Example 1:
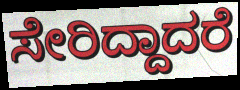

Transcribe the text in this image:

ಸೇರಿದ್ದಾದರೆ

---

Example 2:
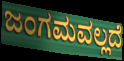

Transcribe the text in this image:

ಜಂಗಮವಲ್ಲದೆ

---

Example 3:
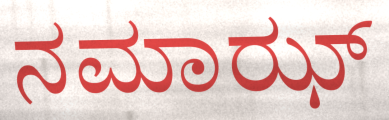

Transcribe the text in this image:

ನಮಾಝ್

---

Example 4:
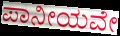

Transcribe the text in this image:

ಪಾನೀಯವೇ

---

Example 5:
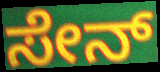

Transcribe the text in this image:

ಸೇನ್